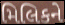
મિલિકને